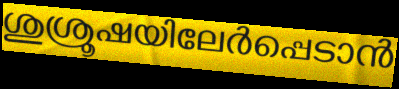
ശുശ്രൂഷയിലേർപ്പെടാൻ